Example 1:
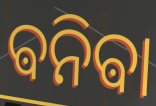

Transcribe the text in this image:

ଵନିଵା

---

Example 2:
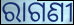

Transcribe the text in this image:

ରାଗଣୀ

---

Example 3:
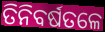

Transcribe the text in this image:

ତିନିବର୍ଷତଳେ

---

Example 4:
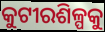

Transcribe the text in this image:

କୁଟୀରଶିଳ୍ପକୁ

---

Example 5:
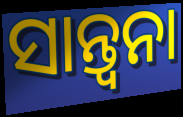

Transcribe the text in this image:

ସାନ୍ତ୍ୱନା